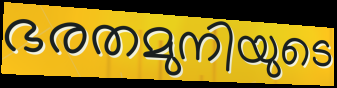
ഭരതമുനിയുടെ